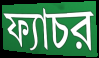
ফ্যাচর